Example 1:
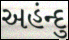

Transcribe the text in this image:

અહંન્દુ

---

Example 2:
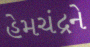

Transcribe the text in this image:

હેમચંદ્રને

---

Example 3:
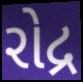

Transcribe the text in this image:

રોદ્ર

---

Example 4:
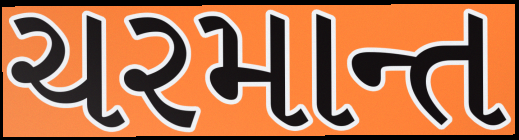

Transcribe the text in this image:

ચરમાન્ત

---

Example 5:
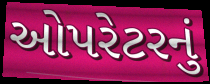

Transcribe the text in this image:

ઓપરેટરનું